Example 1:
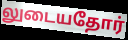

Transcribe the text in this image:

லுடையதோர்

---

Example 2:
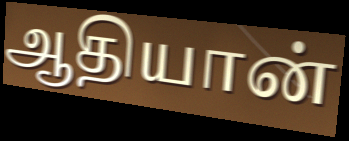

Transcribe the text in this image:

ஆதியான்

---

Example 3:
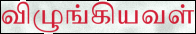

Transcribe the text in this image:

விழுங்கியவள்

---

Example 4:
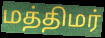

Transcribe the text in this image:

மத்திமர்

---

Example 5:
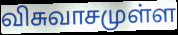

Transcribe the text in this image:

விசுவாசமுள்ள